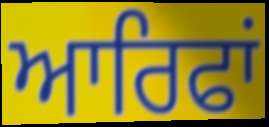
ਆਰਿਫਾਂ